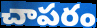
చాపరం